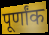
पूर्णांक